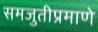
समजुतीप्रमाणे